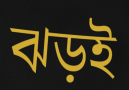
ঝড়ই